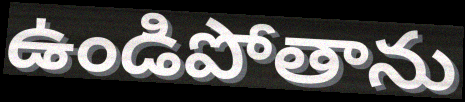
ఉండిపోతాను